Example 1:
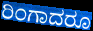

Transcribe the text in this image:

ರಿಂಗಾದರೂ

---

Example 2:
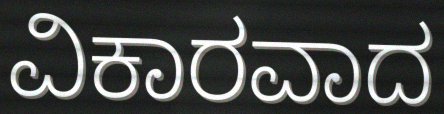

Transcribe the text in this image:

ವಿಕಾರವಾದ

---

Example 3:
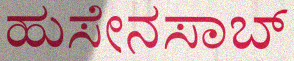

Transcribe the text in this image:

ಹುಸೇನಸಾಬ್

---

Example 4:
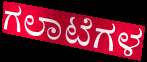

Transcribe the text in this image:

ಗಲಾಟೆಗಳ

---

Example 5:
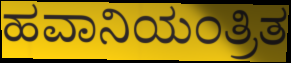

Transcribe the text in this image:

ಹವಾನಿಯಂತ್ರಿತ